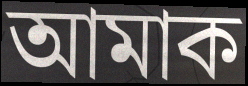
আমাক